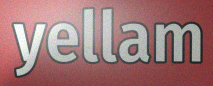
yellam